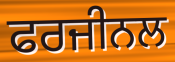
ਫਰਜੀਨਲ